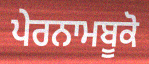
ਪੇਰਨਾਮਬੂਕੋ